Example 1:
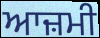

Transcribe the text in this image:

ਆਜ਼ਮੀ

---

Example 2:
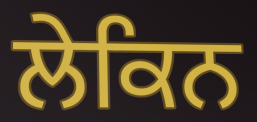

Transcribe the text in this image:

ਲੇਕਿਨ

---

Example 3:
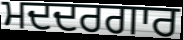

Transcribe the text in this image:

ਮਦਦਰਗਾਰ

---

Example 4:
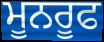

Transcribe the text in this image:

ਮੂਨਰੂਫ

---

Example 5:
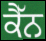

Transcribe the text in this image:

ਕੈੱਨ